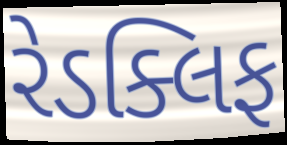
રેડક્લિફ